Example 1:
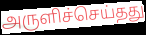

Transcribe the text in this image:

அருளிச்செய்தது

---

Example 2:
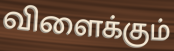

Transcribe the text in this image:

விளைக்கும்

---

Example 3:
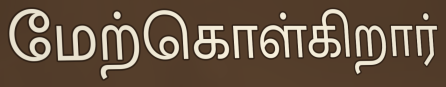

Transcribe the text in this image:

மேற்கொள்கிறார்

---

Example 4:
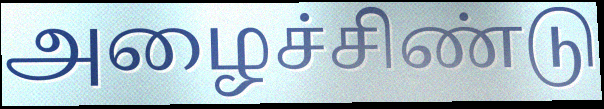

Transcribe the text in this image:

அழைச்சிண்டு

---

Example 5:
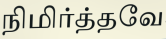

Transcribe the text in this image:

நிமிர்த்தவே